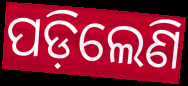
ପଡ଼ିଲେଣି